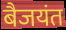
बैजयंत